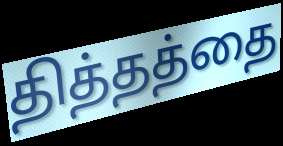
தித்தத்தை